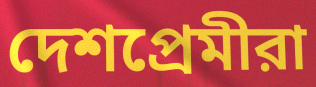
দেশপ্রেমীরা